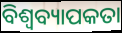
ବିଶ୍ୱବ୍ୟାପକତା